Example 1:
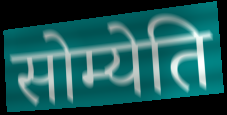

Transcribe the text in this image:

सोम्येति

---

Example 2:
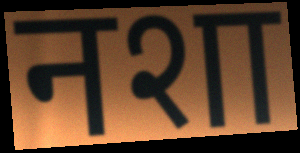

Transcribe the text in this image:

नशा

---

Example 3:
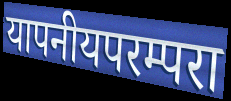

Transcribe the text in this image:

यापनीयपरम्परा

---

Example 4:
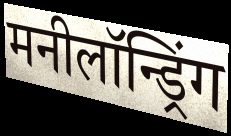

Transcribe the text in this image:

मनीलॉन्ड्रिंग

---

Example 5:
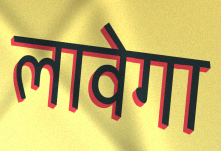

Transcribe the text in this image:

लावेगा